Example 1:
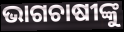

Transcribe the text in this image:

ଭାଗଚାଷୀଙ୍କୁ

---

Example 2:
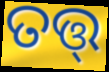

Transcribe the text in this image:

ତତ୍ତ୍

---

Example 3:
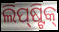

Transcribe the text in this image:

ଲିପ୍‌ଷ୍ଟିକ୍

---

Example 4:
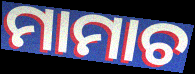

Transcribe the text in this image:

ମାମାଚ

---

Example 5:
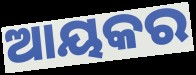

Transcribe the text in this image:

ଆୟକର